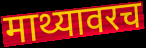
माथ्यावरच